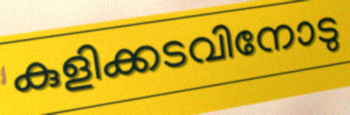
കുളിക്കടവിനോടു